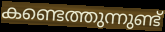
കണ്ടെത്തുന്നുണ്ട്